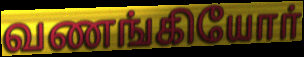
வணங்கியோர்